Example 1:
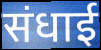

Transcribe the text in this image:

संधाई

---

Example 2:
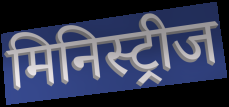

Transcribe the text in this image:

मिनिस्ट्रीज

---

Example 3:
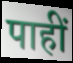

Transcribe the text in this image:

पाहीं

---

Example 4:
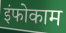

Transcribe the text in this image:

इंफोकाम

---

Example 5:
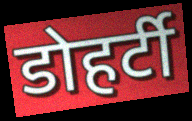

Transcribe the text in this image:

डोहर्टी